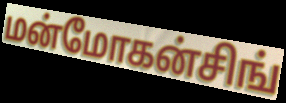
மன்மோகன்சிங்